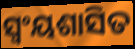
ସ୍ୱଂୟଶାସିତ